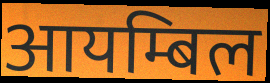
आयम्बिल